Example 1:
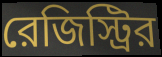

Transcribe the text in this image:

রেজিস্ট্রির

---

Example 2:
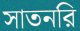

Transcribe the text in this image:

সাতনরি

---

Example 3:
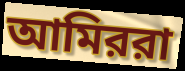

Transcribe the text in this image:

আমিররা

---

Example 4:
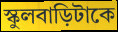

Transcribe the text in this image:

স্কুলবাড়িটাকে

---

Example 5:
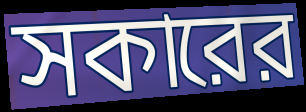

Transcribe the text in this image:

সকারের